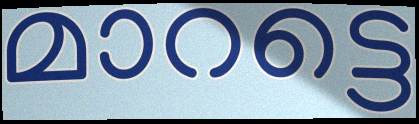
മാറട്ടെ